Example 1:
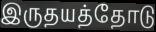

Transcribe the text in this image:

இருதயத்தோடு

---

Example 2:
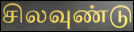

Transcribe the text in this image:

சிலவுண்டு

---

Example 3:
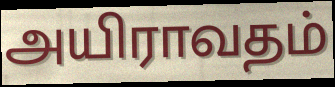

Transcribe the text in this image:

அயிராவதம்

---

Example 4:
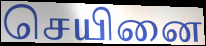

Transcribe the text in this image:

செயினை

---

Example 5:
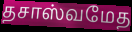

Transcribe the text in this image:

தசாஸ்வமேத